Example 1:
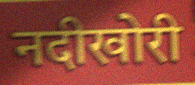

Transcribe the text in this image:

नदीखोरी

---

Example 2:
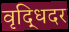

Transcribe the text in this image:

वृद्धिदर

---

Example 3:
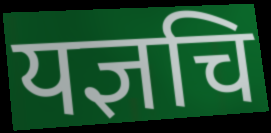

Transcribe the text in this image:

यज्ञचि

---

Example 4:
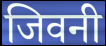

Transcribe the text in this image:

जिवनी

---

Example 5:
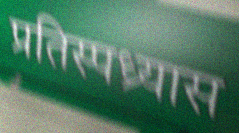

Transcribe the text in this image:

प्रतिस्पध्र्यास